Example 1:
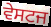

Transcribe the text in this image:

ਵੇਸਟਜ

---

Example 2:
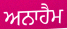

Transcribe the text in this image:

ਅਨਾਹੈਮ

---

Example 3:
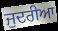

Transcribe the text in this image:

ਜੁਦਰੀਆ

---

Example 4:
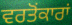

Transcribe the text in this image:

ਵਰਤੋਂਕਾਰਾਂ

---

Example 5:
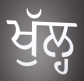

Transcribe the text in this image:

ਖੁੱਲ੍ਹ